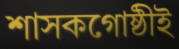
শাসকগোষ্ঠীই